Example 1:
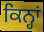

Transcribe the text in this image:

ਕਿਨ੍ਹਾਂ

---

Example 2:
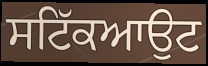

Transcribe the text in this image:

ਸਟਿੱਕਆਉਟ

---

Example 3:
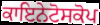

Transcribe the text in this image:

ਕਾਇਨੇਟੋਸਕੋਪ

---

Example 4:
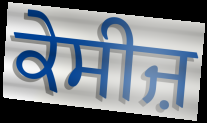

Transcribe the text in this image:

ਕੇਸੀਜ਼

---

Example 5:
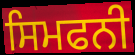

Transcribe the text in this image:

ਸਿਮਫਨੀ